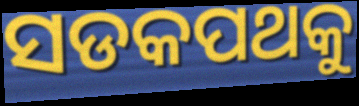
ସଡକପଥକୁ